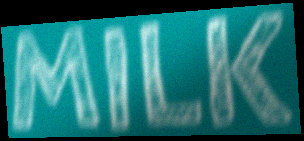
MILK